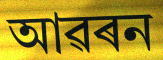
আৱৰন